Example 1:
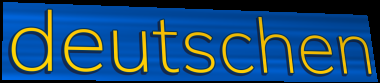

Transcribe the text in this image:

deutschen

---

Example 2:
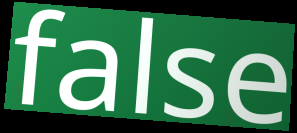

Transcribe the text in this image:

false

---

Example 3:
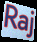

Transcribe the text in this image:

Raj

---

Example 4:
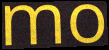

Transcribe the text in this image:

mo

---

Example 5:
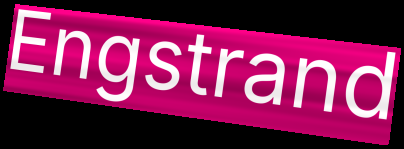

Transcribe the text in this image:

Engstrand